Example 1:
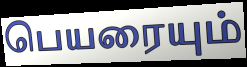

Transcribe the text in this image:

பெயரையும்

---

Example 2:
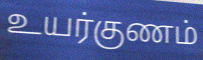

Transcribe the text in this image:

உயர்குணம்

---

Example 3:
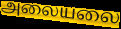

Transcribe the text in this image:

அலையலை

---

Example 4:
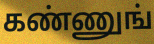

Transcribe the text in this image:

கண்ணுங்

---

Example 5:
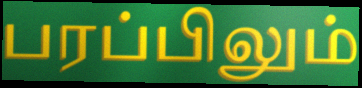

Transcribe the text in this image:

பரப்பிலும்